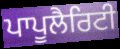
ਪਾਪੂਲੈਰਿਟੀ